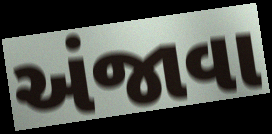
અંજાવા